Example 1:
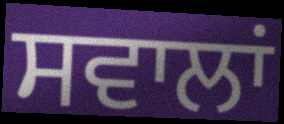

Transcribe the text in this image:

ਸਵਾਲਾਂ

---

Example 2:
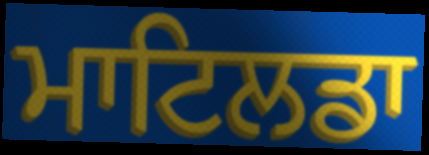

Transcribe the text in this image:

ਮਾਟਿਲਡਾ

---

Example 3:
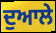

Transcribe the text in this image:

ਦੁਆਲੇ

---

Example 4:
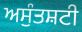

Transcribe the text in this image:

ਅਸੁੰਤਸ਼ਟੀ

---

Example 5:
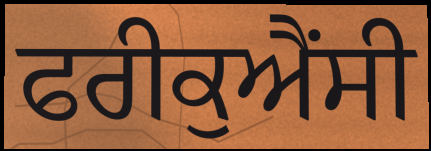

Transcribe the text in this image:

ਫਰੀਕੁਐਂਸੀ